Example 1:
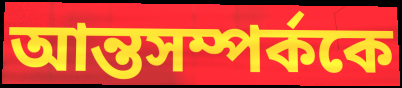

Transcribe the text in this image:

আন্তসম্পর্ককে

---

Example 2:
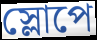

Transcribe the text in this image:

স্লোপে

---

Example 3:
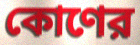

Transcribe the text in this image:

কোণের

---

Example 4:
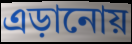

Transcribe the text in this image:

এড়ানোয়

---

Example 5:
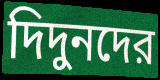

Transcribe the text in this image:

দিদুনদের